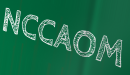
NCCAOM